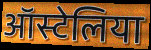
ऑस्टेलिया